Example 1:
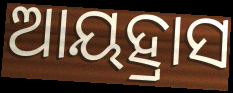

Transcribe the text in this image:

ଆୟହ୍ରାସ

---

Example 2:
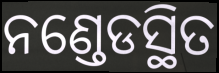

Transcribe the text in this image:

ନଣ୍ଡେଡସ୍ଥିତ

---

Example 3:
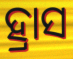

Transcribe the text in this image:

ହ୍ରାସ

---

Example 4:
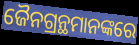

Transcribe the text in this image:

ଜୈନଗ୍ରନ୍ଥମାନଙ୍କରେ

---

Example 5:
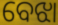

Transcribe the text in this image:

ବେଝା